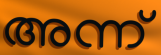
അന്ന്